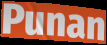
Punan